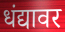
धंद्यावर